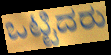
ಒಟ್ಟಿದರು